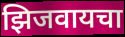
झिजवायचा